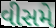
વીસમે